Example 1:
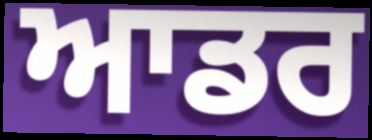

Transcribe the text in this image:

ਆਡਰ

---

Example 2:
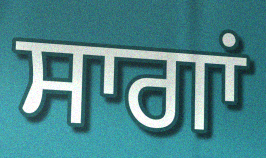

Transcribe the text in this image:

ਸਾਗਾਂ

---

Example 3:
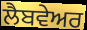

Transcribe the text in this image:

ਲੈਬਵੇਅਰ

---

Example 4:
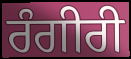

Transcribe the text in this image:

ਰੰਗੀਰੀ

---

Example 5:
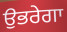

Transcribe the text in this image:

ਉਭਰੇਗਾ